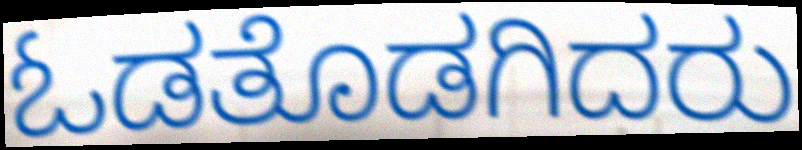
ಓಡತೊಡಗಿದರು